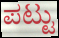
ಪಟ್ಟು